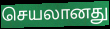
செயலானது